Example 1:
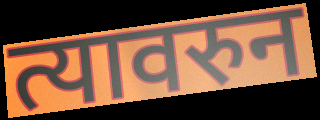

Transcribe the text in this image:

त्यावरुन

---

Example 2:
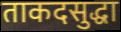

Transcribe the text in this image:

ताकदसुद्धा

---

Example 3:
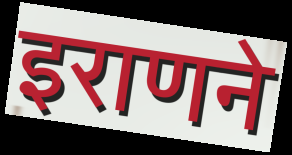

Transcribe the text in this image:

इराणने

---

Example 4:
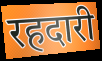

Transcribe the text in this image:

रहदारी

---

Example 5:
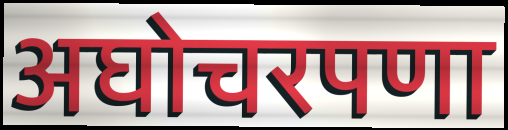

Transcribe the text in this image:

अघोचरपणा